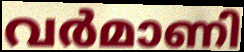
വർമാണി